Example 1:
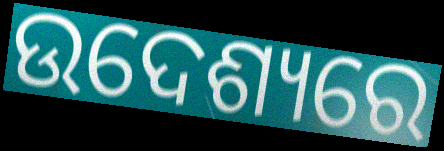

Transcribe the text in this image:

ଉଦେଶ୍ୟରେ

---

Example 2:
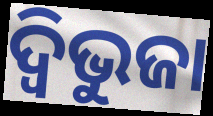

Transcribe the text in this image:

ଦ୍ବିଭୁଜା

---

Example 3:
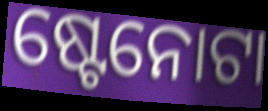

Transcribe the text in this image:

ଷ୍ଟେନୋଟା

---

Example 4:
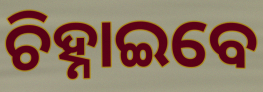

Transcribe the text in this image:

ଚିହ୍ନାଇବେ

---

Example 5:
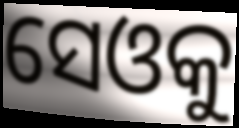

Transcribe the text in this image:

ସେଓକୁ